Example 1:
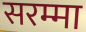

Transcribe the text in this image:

सरम्मा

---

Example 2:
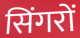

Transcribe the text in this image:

सिंगरों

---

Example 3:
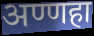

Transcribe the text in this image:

अण्णहा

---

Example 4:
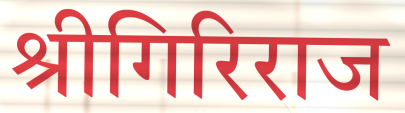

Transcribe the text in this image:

श्रीगिरिराज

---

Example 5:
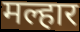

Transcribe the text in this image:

मल्हार